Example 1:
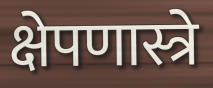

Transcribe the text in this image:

क्षेपणास्त्रे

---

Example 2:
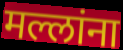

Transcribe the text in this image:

मल्लांना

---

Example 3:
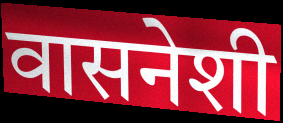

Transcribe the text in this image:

वासनेशी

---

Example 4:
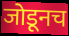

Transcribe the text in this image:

जोडूनच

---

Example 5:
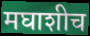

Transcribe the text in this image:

मघाशीच